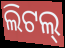
ଲିଟଲ୍